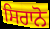
ਸਿਰਾਨੋ